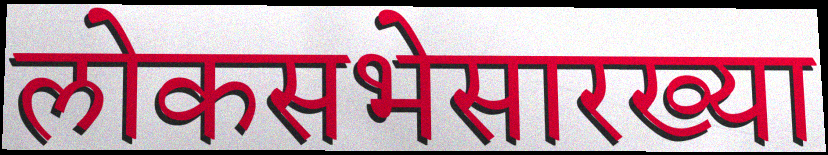
लोकसभेसारख्या